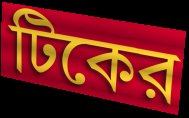
টিকের